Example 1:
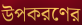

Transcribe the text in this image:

উপকরণের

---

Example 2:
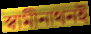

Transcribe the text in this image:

স্বামীনাথনই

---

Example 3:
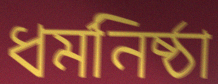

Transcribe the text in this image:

ধর্মনিষ্ঠা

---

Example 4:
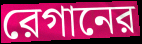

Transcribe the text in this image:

রেগানের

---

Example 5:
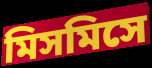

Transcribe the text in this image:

মিসমিসে